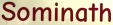
Sominath